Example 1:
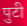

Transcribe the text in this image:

पुटी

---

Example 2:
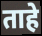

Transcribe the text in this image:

ताहे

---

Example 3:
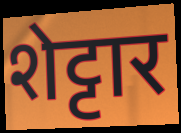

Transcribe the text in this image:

शेट्टार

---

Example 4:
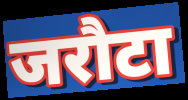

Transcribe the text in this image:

जरौटा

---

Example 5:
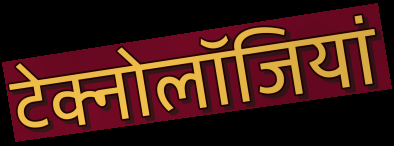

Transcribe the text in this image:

टेक्नोलॉजियां